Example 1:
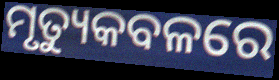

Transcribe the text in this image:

ମୃତ୍ୟୁକବଳରେ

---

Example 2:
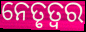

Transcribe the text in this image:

ନେତୃତ୍ବର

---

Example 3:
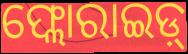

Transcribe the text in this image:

ଫ୍ଲୋରାଇଡ଼୍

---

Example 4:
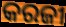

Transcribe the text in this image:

କରଜୀ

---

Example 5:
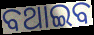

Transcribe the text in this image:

ବଥାଇବ